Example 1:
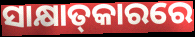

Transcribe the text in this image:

ସାକ୍ଷାତ୍‌କାରରେ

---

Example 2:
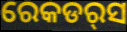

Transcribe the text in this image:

ରେକଡର୍‌ସ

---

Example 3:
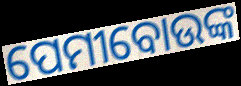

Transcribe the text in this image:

ପେମୀବୋଉଙ୍କ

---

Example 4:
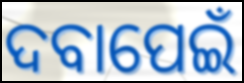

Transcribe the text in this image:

ଦବାପେଇଁ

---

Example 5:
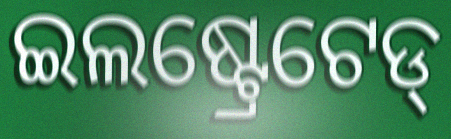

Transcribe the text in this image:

ଇଲଷ୍ଟ୍ରେଟେଡ୍